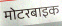
मोटरबाइक